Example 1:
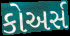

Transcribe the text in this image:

કોઅર્સ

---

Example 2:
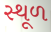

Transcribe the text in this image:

સ્‍થૂળ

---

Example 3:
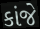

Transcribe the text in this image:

કાંજે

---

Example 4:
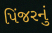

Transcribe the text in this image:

પિંજરનું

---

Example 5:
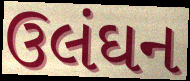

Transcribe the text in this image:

ઉલંઘન